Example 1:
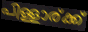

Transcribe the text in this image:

പിള്ളാര്ക്ക്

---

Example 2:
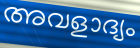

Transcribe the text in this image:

അവളാദ്യം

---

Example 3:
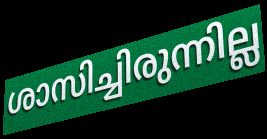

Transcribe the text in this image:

ശാസിച്ചിരുന്നില്ല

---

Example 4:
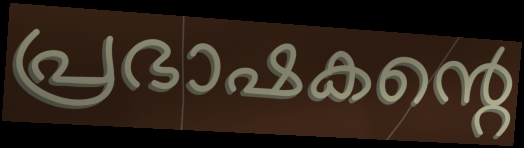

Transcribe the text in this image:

പ്രഭാഷകന്റെ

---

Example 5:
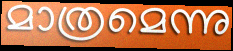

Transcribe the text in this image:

മാത്രമെന്നു